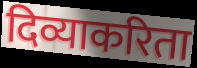
दिव्याकरिता